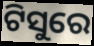
ଟିସୁରେ